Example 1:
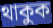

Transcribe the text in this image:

থাকুক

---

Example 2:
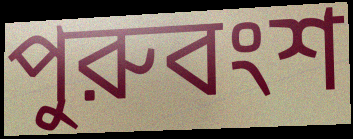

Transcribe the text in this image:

পুরুবংশ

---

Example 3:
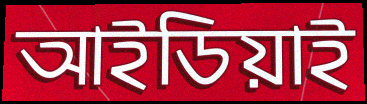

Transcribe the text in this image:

আইডিয়াই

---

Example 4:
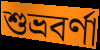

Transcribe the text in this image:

শুভ্রবর্ণা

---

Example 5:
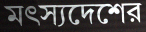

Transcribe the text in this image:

মৎস্যদেশের